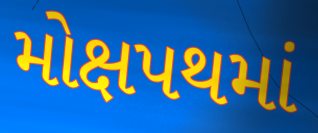
મોક્ષપથમાં